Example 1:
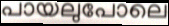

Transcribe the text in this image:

പായലുപോലെ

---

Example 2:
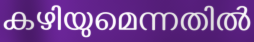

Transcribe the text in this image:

കഴിയുമെന്നതിൽ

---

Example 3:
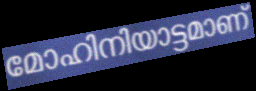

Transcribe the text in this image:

മോഹിനിയാട്ടമാണ്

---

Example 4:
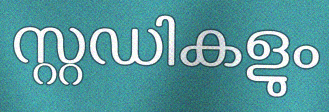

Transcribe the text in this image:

സ്റ്റഡികളും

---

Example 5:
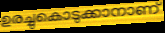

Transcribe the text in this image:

ഉരച്ചുകൊടുക്കാനാണ്